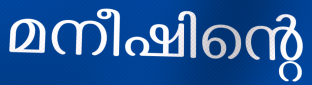
മനീഷിന്റെ